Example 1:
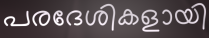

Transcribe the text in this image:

പരദേശികളായി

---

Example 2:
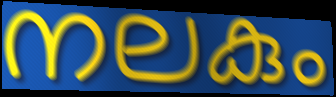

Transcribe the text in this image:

നലകും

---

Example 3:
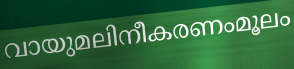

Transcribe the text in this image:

വായുമലിനീകരണംമൂലം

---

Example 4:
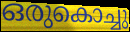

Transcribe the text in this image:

ഒരുകൊച്ചു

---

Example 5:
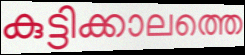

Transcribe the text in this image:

കുട്ടിക്കാലത്തെ